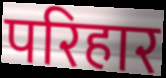
परिहार